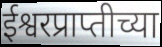
ईश्वरप्राप्तीच्या